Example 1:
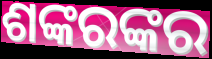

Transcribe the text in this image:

ଶଙ୍କରଙ୍କର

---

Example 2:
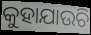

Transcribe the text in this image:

କୁହାଯାଉଚି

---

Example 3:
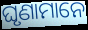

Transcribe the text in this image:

ଘୃଣାମାନେ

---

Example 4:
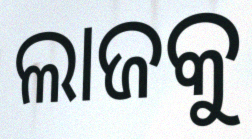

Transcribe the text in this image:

ଲାଜକୁ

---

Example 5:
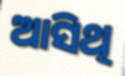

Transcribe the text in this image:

ଆସିଥି